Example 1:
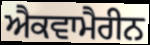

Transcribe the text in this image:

ਐਕਵਾਮੈਰੀਨ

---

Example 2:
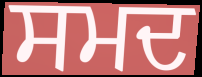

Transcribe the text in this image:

ਸਮਦ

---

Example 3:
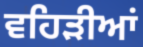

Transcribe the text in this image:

ਵਹਿੜੀਆਂ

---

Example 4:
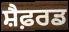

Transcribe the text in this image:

ਸ਼ੈਫ਼ਰਡ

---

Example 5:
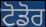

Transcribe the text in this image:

ਟੋਡੋਰ